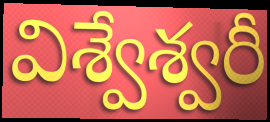
విశ్వేశ్వరీ